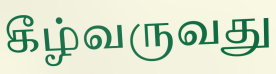
கீழ்வருவது